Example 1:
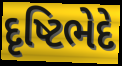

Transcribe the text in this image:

દૃષ્ટિભેદે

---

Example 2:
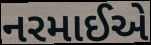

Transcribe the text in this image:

નરમાઈએ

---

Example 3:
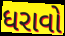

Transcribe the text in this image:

ધરાવો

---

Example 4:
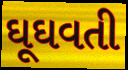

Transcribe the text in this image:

ઘૂઘવતી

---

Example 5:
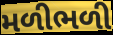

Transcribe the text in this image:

મળીભળી